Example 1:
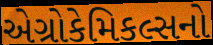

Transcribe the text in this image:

એગ્રોકેમિકલ્સનો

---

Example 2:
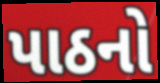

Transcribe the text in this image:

પાઠનો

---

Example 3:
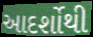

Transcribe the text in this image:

આદર્શોથી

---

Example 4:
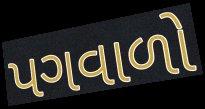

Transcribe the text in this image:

પગવાળો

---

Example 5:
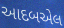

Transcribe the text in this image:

આદબએલ